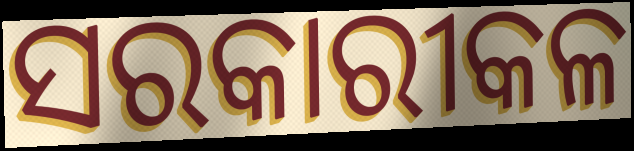
ସରକାରୀକଳ